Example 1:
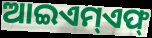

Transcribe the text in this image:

ଆଇଏମ୍ଏଫ୍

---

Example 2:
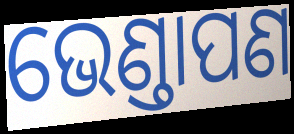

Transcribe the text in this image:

ଭେଣ୍ଡାପଣ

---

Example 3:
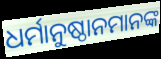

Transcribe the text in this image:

ଧର୍ମାନୁଷ୍ଠାନମାନଙ୍କ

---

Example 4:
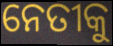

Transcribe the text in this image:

ନେତୀକୁ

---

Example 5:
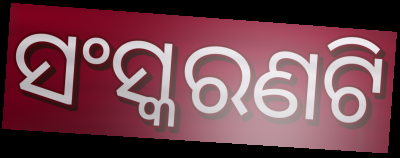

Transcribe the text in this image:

ସଂସ୍କରଣଟି